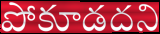
పోకూడదని